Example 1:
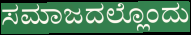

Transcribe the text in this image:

ಸಮಾಜದಲ್ಲೊಂದು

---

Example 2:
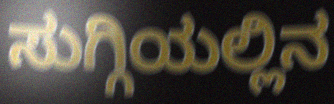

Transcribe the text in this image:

ಸುಗ್ಗಿಯಲ್ಲಿನ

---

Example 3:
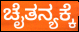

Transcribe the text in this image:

ಚೈತನ್ಯಕ್ಕೆ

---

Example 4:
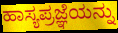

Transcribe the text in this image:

ಹಾಸ್ಯಪ್ರಜ್ಞೆಯನ್ನು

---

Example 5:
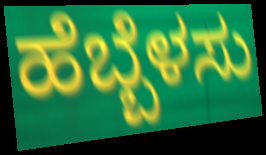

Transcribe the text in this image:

ಹೆಬ್ಬೆಳಸು